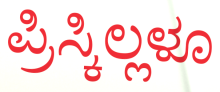
ಪ್ರಿಸ್ಕಿಲ್ಲಳೂ